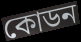
কোডন